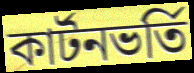
কার্টনভর্তি